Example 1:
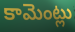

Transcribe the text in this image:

కామెంట్లు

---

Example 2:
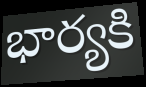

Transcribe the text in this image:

భార్యకి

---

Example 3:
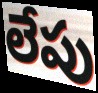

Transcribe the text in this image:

లేపు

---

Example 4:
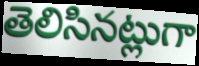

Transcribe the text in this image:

తెలిసినట్లుగా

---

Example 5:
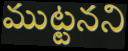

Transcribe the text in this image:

ముట్టనని